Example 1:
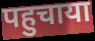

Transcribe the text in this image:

पहुचाया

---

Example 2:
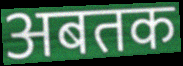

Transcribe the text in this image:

अबतक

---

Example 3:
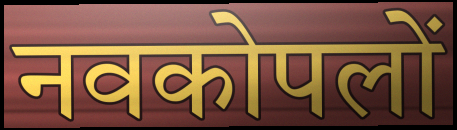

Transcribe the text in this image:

नवकोपलों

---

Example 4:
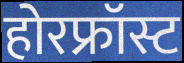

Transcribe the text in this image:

होरफ्रॉस्ट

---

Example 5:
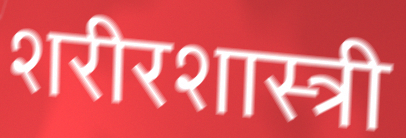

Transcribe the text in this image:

शरीरशास्त्री